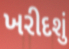
ખરીદશું